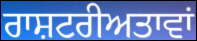
ਰਾਸ਼ਟਰੀਅਤਾਵਾਂ